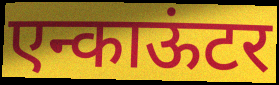
एन्काऊंटर